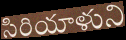
సిరియాళుని